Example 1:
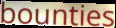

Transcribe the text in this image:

bounties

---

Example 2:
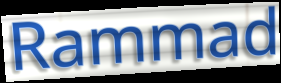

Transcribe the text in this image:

Rammad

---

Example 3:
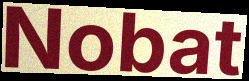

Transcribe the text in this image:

Nobat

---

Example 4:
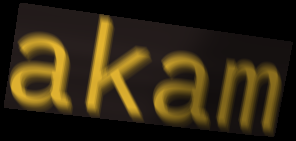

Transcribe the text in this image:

akam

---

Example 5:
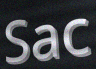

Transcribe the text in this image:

Sac